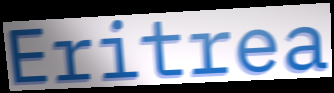
Eritrea